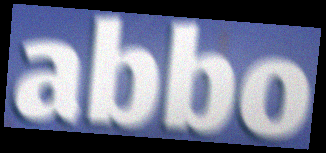
abbo